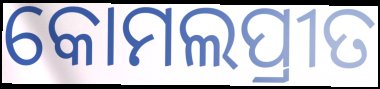
କୋମଲପ୍ରୀତ